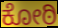
ಕೋಠಿ